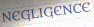
NEGLIGENCE